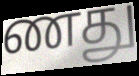
ணது